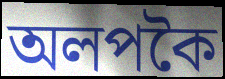
অলপকৈ